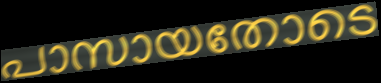
പാസായതോടെ